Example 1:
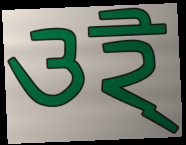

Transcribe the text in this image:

ওই্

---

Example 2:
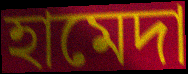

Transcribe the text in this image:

হামেদা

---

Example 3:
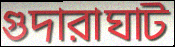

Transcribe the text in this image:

গুদারাঘাট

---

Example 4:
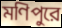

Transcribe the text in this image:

মণিপুরে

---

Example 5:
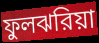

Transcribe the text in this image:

ফুলঝরিয়া